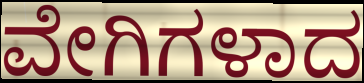
ವೇಗಿಗಳಾದ